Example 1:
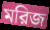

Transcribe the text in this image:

মরিজ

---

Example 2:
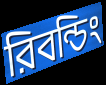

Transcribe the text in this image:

রিবন্ডিং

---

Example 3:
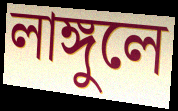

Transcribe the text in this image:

লাঙ্গুলে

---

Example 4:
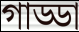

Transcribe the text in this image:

গাড্ডা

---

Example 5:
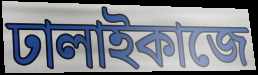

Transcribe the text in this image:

ঢালাইকাজে